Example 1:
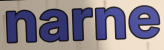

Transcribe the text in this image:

narne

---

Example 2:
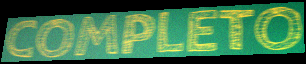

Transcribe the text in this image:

COMPLETO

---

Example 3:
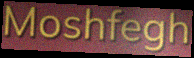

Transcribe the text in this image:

Moshfegh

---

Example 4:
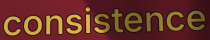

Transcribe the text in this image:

consistence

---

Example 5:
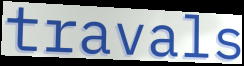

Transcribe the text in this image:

travals